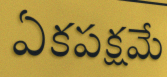
ఏకపక్షమే